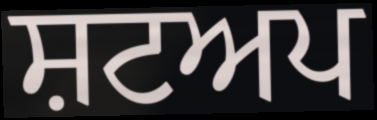
ਸ਼ਟਅਪ